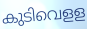
കുടിവെളള